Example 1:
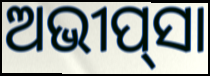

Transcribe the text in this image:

ଅଭୀପ୍‌ସା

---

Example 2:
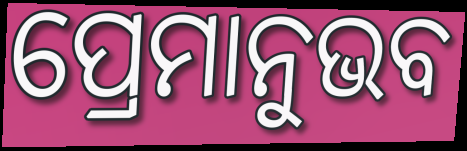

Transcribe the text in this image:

ପ୍ରେମାନୁଭବ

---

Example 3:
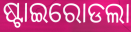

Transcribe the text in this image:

ଷ୍ଟାଇରୋଡଲା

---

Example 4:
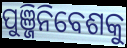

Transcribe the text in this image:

ପୁଞ୍ଜିନିବେଶକୁ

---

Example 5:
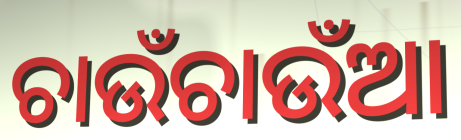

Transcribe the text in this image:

ଚାଉଁଚାଉଁଆ